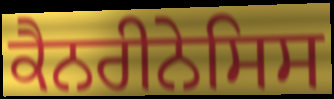
ਕੈਨਰੀਨੇਸਿਸ